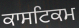
ਕਾਸਟਿਕਮ